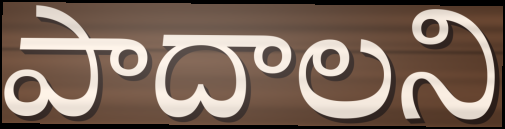
పాదాలని